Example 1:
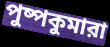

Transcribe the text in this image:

পুষ্পকুমারা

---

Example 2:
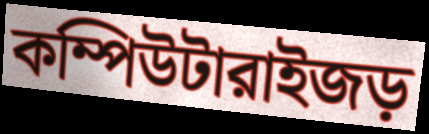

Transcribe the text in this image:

কম্পিউটারাইজড়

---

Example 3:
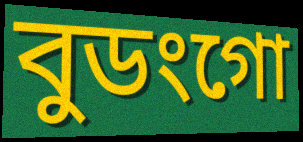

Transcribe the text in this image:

বুডংগো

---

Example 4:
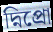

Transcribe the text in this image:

দ্নিপ্রো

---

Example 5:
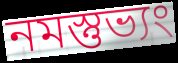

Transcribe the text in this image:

নমস্তুভ্যং